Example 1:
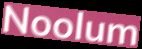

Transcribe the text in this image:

Noolum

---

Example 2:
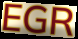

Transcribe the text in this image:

EGR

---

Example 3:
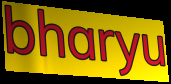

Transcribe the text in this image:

bharyu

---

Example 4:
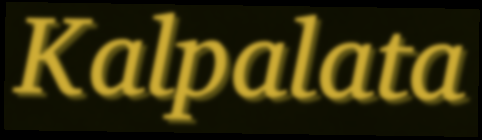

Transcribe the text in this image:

Kalpalata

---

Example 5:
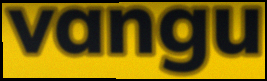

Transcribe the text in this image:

vangu